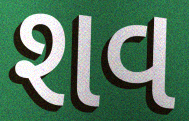
શવ